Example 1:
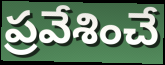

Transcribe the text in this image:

ప్రవేశించే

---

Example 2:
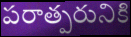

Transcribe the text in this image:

పరాత్పరునికి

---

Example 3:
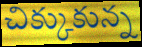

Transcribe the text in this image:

చిక్కుకున్న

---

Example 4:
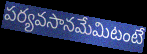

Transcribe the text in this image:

పర్యవసానమేమిటంటే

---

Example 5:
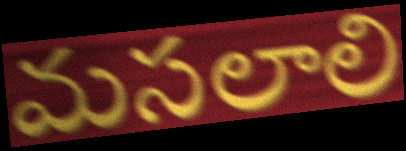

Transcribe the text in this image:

మసలాలి